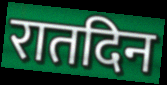
रातदिन